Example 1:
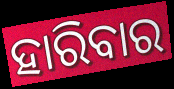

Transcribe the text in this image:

ହାରିବାର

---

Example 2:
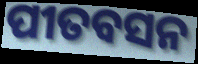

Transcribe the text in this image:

ପୀତବସନ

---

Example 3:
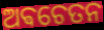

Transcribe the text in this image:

ଅଵଚେତନ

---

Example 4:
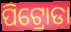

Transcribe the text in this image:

ପିଟ୍ରୋଡା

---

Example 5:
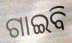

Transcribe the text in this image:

ଗାଇବି